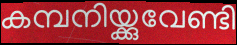
കമ്പനിയ്ക്കുവേണ്ടി